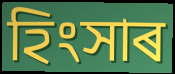
হিংসাৰ